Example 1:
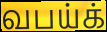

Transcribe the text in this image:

வபய்க்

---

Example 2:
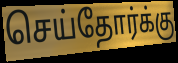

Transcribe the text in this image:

செய்தோர்க்கு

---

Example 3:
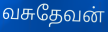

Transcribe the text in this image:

வசுதேவன்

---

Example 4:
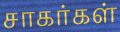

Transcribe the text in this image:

சாகர்கள்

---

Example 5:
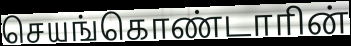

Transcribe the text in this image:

செயங்கொண்டாரின்